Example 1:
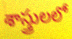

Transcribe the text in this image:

శాస్త్రులలో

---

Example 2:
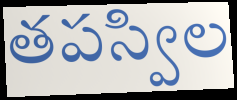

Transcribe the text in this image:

తపస్విల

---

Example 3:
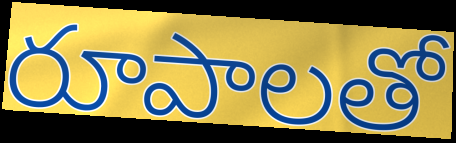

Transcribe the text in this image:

రూపాలతో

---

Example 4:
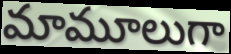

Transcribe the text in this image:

మామూలుగా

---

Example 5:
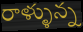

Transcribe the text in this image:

రాళ్ళున్న